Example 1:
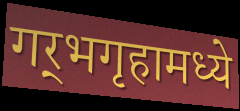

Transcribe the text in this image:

गर्भगृहामध्ये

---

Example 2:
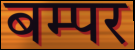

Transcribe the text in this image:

बम्पर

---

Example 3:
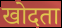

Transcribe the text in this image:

खोदता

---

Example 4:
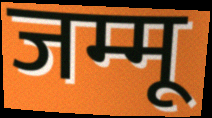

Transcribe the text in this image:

जम्मू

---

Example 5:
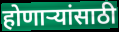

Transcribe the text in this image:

होणाऱ्यांसाठी